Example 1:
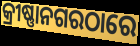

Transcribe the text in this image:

କ୍ରୀଷ୍ଣାନଗରଠାରେ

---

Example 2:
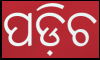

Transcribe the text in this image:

ପଡ଼ିଚ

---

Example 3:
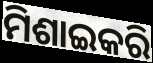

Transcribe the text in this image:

ମିଶାଇକରି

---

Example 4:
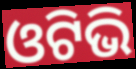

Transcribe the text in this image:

ଓଟିଭି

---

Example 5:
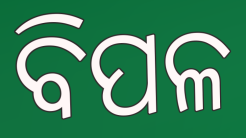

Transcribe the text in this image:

ବିପଳ